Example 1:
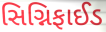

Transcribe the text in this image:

સિગ્નિફાઈડ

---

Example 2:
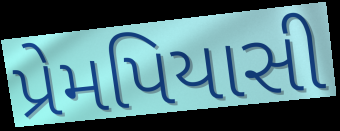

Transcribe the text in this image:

પ્રેમપિયાસી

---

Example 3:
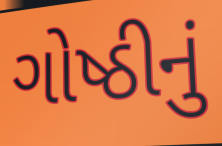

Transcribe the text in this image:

ગોષ્ઠીનું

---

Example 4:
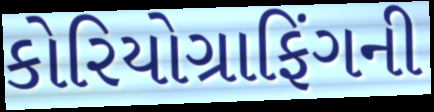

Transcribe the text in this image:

કોરિયોગ્રાફિંગની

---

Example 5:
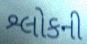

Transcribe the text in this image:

શ્લોકની